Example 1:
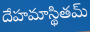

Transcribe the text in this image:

దేహమాస్థితమ్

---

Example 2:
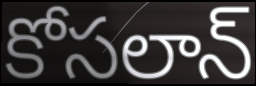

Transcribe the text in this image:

కోసలాన్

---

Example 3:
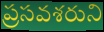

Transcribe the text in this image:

ప్రసవశరుని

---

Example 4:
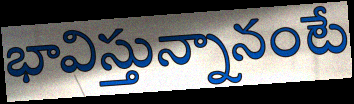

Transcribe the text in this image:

భావిస్తున్నానంటే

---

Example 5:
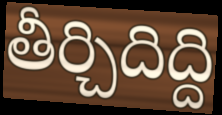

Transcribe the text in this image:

తీర్చిదిద్ది